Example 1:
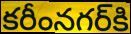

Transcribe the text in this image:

కరీంనగర్‌కి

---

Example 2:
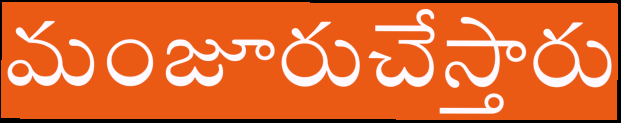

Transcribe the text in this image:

మంజూరుచేస్తారు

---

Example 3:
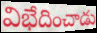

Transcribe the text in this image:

విభేదించాడు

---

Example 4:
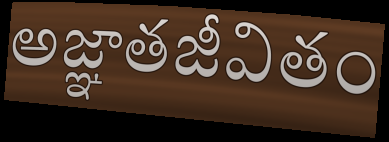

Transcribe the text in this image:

అజ్ఞాతజీవితం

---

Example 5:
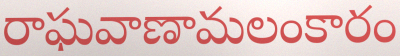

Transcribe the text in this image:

రాఘవాణామలంకారం